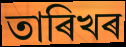
তাৰিখৰ